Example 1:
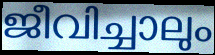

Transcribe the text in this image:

ജീവിച്ചാലും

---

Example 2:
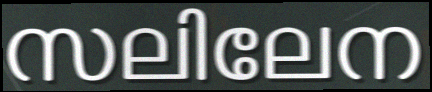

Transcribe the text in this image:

സലിലേന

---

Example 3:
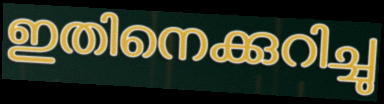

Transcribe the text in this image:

ഇതിനെക്കുറിച്ചു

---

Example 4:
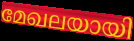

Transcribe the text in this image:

മേഖലയായി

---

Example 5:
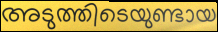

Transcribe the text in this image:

അടുത്തിടെയുണ്ടായ